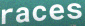
races